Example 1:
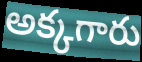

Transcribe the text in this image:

అక్కగారు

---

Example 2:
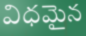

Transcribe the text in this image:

విధమైన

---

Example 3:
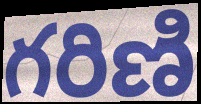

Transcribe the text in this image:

గరిణి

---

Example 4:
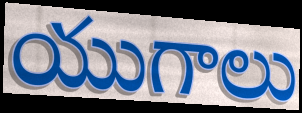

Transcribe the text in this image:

యుగాలు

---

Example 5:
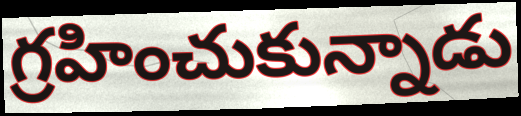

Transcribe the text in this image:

గ్రహించుకున్నాడు